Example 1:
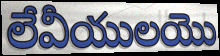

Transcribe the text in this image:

లేవీయులయొ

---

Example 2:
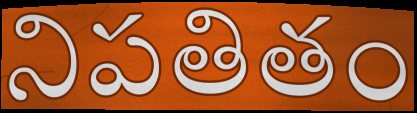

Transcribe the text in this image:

నిపతితం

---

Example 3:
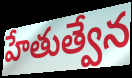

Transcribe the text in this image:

హేతుత్వేన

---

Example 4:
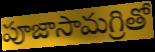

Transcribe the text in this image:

పూజాసామగ్రితో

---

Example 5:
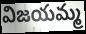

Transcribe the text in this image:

విజయమ్మ